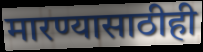
मारण्यासाठीही